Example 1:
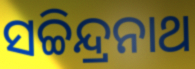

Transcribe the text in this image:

ସଚ୍ଚିନ୍ଦ୍ରନାଥ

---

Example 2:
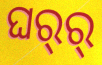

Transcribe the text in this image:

ଘର୍‍ର୍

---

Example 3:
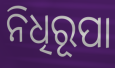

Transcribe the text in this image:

ନିଧିରୂପା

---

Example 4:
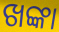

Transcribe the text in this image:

ଖଙ୍କା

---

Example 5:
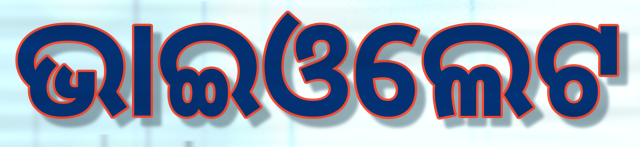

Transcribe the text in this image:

ଭାଇଓଲେଟ